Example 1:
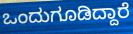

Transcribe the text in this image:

ಒಂದುಗೂಡಿದ್ದಾರೆ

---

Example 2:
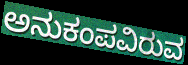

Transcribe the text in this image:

ಅನುಕಂಪವಿರುವ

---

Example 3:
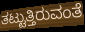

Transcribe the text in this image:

ತಟ್ಟುತ್ತಿರುವಂತೆ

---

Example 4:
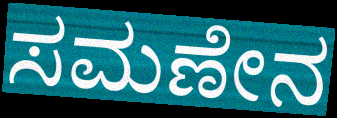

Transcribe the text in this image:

ಸಮಣೇನ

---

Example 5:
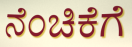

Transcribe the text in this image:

ನೆಂಚಿಕೆಗೆ